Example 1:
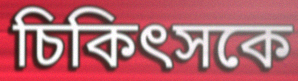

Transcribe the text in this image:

চিকিৎসকে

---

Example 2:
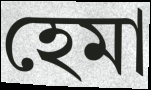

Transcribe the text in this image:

হেমা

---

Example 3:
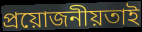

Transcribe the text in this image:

প্ৰয়োজনীয়তাই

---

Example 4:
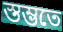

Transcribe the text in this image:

স্তম্ভতে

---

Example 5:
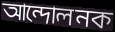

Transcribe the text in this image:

আন্দোলনক